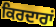
ਕਿਰਦਾਰਾਂ